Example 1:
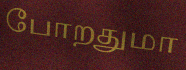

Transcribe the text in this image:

போறதுமா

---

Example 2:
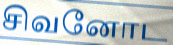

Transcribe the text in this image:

சிவனோட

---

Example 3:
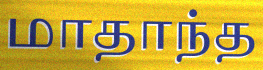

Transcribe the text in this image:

மாதாந்த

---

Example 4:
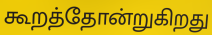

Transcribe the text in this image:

கூறத்தோன்றுகிறது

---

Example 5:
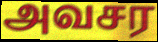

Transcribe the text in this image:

அவசர